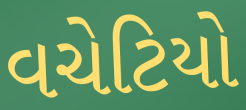
વચેટિયો